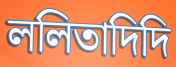
ললিতাদিদি